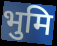
भुमि